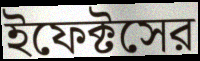
ইফেক্টসের